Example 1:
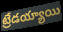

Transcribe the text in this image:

ట్రేడయ్యాయి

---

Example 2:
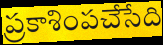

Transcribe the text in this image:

ప్రకాశింపచేసేది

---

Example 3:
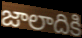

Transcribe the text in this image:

జాలాదికి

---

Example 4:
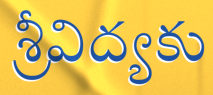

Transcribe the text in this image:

శ్రీవిద్యకు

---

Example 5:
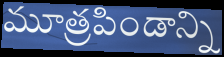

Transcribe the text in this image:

మూత్రపిండాన్ని